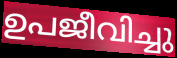
ഉപജീവിച്ചു